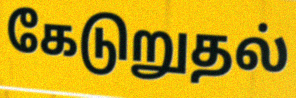
கேடுறுதல்